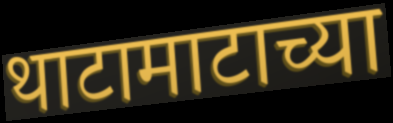
थाटामाटाच्या